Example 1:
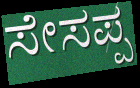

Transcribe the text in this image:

ಸೇಸಪ್ಪ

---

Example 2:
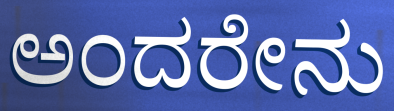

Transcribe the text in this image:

ಅಂದರೇನು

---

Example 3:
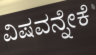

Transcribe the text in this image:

ವಿಷವನ್ನೇಕೆ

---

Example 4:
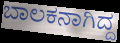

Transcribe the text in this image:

ಬಾಲಕನಾಗಿದ್ದ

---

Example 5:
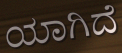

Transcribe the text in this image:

ಯಾಗಿದೆ